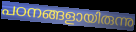
പഠനങ്ങളായിരുന്നു